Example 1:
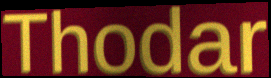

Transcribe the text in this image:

Thodar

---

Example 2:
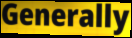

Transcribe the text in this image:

Generally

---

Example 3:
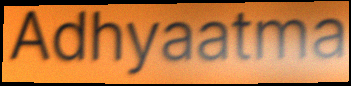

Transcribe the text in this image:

Adhyaatma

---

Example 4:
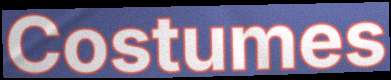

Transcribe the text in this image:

Costumes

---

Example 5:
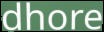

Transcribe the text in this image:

dhore